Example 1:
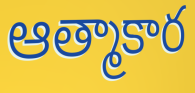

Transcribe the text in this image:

ఆత్మాకార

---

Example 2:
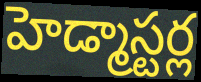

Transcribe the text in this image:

హెడ్మాస్టర్ల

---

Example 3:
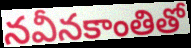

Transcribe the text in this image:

నవీనకాంతితో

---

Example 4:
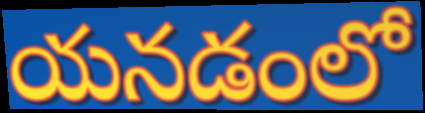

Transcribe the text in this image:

యనడంలో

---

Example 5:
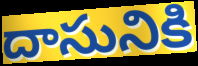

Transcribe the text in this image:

దాసునికి